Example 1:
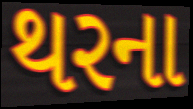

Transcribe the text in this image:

થરના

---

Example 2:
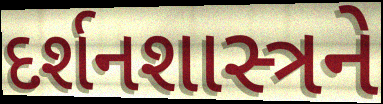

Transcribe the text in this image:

દર્શનશાસ્ત્રને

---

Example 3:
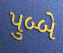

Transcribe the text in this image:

પુબ્બે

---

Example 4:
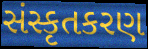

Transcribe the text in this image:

સંસ્કૃતકરણ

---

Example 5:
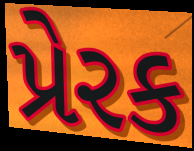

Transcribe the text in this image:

પ્રેરક